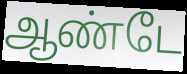
ஆண்டே